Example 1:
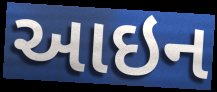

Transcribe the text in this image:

આઇન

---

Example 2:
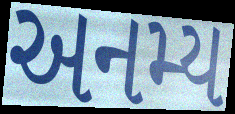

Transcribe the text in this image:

અનમ્ય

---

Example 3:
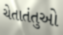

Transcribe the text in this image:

ચેતાતંતુઓ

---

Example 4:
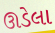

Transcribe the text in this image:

ઊડેલા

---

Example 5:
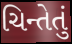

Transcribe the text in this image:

ચિન્તેતું